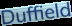
Duffield